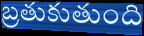
బ్రతుకుతుంది